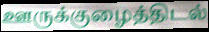
ஊருக்குழைத்திடல்